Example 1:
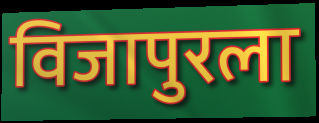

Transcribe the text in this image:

विजापुरला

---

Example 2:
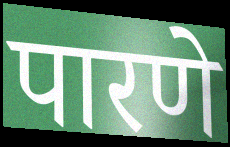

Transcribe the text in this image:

पारणे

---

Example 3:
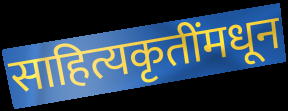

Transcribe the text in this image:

साहित्यकृतींमधून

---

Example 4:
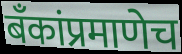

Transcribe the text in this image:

बॅंकांप्रमाणेच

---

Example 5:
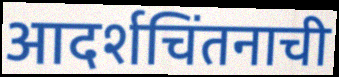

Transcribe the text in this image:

आदर्शचिंतनाची